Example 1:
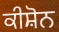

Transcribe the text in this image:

ਕੀਸ਼ੋਨ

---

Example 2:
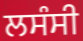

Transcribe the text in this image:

ਲਸੰਸੀ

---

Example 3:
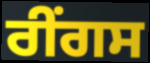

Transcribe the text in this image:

ਰੀਂਗਸ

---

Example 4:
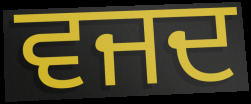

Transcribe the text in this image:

ਵਜਦ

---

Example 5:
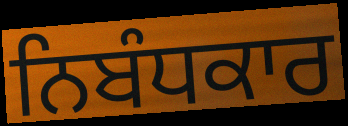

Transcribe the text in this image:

ਨਿਬੰਧਕਾਰ